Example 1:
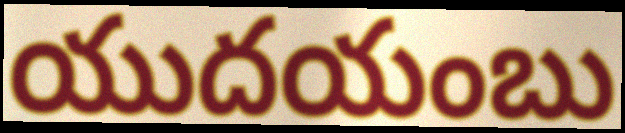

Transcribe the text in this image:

యుదయంబు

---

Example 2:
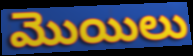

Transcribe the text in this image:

మొయిలు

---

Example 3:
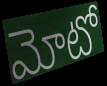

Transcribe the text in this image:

మోటో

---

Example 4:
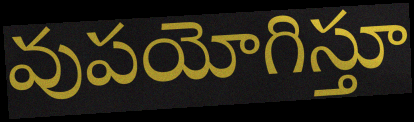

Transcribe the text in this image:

వుపయోగిస్తూ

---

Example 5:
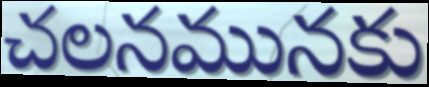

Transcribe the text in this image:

చలనమునకు